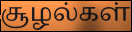
சூழல்கள்